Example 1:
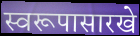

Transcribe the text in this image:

स्वरूपासारखे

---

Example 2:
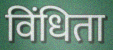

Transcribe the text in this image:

विंधिता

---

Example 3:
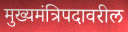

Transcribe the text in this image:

मुख्यमंत्रिपदावरील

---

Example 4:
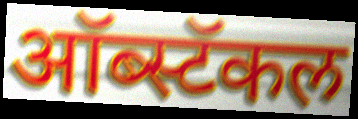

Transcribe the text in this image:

ऑब्स्टॅकल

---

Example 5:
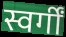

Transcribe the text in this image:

स्वर्गीं